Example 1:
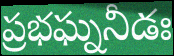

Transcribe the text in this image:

ప్రభఘ్ననీడః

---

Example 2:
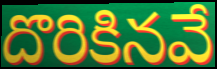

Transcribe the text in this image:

దొరికినవే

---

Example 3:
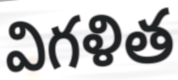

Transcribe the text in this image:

విగళిత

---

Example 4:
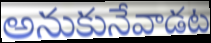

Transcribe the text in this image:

అనుకునేవాడట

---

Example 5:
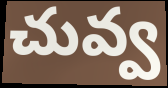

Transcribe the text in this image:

చువ్వ